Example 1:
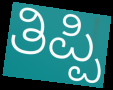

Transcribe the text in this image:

ತಿಪ್ಪಿ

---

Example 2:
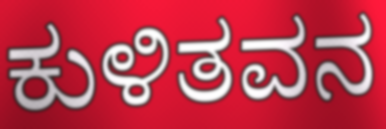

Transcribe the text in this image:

ಕುಳಿತವನ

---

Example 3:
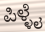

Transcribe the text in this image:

ಪಿಳ್ಳೈ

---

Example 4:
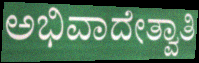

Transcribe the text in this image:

ಅಭಿವಾದೇತ್ವಾತಿ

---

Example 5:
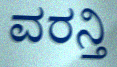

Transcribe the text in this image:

ವರನ್ತಿ